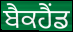
ਬੈਕਹੈਂਡ